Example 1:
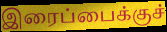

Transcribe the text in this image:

இரைப்பைக்குச்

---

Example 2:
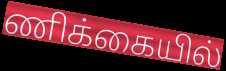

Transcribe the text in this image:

ணிக்கையில்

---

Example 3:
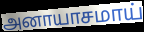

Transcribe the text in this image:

அனாயாசமாய்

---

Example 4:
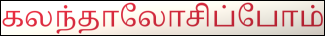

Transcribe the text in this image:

கலந்தாலோசிப்போம்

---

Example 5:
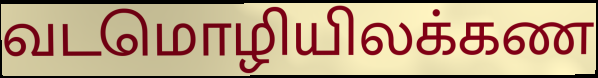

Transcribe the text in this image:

வடமொழியிலக்கண